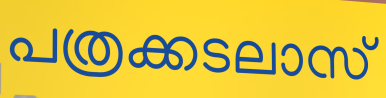
പത്രക്കടലാസ്